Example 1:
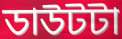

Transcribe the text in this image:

ডাউটটা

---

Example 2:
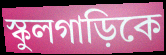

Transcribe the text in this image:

স্কুলগাড়িকে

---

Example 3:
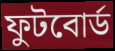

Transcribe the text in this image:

ফুটবোর্ড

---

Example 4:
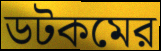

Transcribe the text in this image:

ডটকমের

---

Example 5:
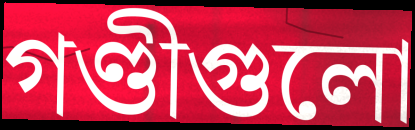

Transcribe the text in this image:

গণ্ডীগুলো